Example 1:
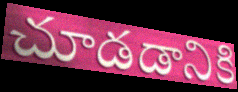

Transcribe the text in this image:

చూడడానికి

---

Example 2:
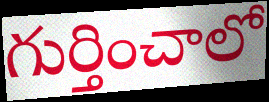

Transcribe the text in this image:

గుర్తించాలో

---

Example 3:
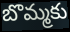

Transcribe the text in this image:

బొమ్మకు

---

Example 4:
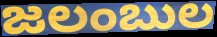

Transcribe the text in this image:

జలంబుల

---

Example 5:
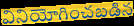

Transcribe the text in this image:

వినియోగించబడిన